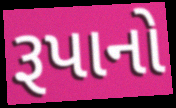
રૂપાનો